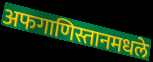
अफगाणिस्तानमधले